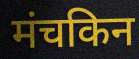
मंचकिन